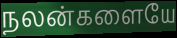
நலன்களையே